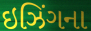
ઇઝિંગના